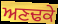
ਅਣਢਕੇ